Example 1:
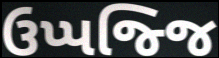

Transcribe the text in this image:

ઉપ્પજ્જિ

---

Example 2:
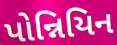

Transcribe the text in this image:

પોન્નિયિન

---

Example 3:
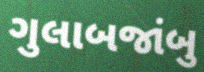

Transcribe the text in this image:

ગુલાબજાંબુ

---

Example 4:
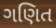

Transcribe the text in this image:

ગણિત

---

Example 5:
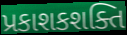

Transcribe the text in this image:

પ્રકાશકશક્તિ